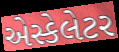
એસ્કેલેટર